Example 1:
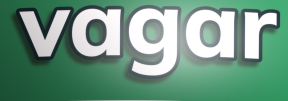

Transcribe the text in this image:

vagar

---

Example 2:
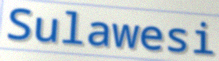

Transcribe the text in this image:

Sulawesi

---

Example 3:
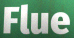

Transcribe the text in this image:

Flue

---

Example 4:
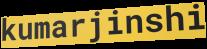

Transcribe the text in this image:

kumarjinshi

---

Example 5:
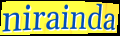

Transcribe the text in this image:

nirainda